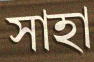
সাহা